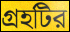
গ্রহটির